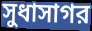
সুধাসাগর